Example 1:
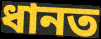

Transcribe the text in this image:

ধানত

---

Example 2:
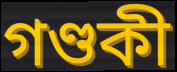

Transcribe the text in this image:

গণ্ডকী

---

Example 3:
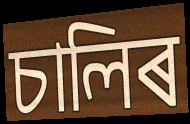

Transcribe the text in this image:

চালিৰ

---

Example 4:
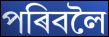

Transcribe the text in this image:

পৰিবলৈ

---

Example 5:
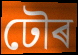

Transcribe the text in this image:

ঢৌৰ